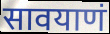
सावयाणं